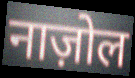
नाज़ोल